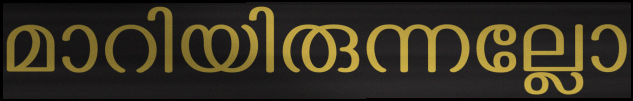
മാറിയിരുന്നല്ലോ